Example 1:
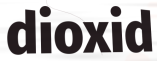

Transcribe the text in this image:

dioxid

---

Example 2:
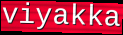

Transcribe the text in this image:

viyakka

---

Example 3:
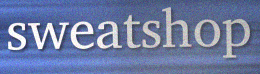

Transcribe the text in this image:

sweatshop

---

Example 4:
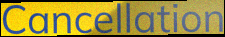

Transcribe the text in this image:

Cancellation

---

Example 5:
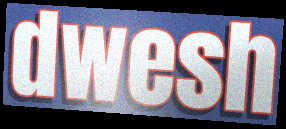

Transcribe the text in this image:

dwesh